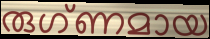
രുഗ്ണമായ